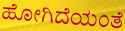
ಹೋಗಿದೆಯಂತೆ